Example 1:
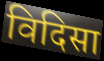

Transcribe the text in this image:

विदिसा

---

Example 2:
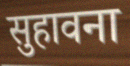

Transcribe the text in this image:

सुहावना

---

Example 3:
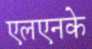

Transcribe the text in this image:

एलएनके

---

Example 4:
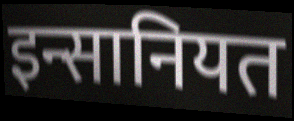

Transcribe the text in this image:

इन्सानियत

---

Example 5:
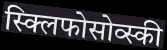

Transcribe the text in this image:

स्क्लिफोसोव्स्की